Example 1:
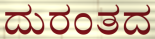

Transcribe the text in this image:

ದುರಂತದ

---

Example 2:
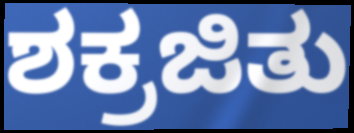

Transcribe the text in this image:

ಶಕ್ರಜಿತು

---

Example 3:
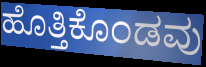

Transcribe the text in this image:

ಹೊತ್ತಿಕೊಂಡವು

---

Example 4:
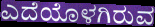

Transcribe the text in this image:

ಎದೆಯೊಳಗಿರುವ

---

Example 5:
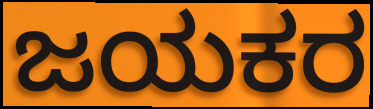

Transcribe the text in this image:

ಜಯಕರ